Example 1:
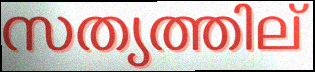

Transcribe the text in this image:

സത്യത്തില്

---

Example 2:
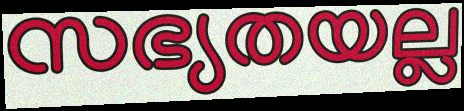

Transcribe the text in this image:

സഭ്യതയല്ല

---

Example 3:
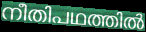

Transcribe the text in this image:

നീതിപഥത്തിൽ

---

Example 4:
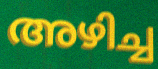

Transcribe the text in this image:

അഴിച്ച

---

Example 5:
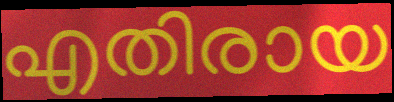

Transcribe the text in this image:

എതിരായ